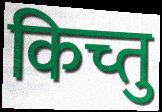
किच्तु